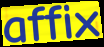
affix